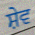
ਸ਼ੇਵ